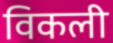
विकली